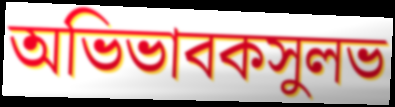
অভিভাবকসুলভ